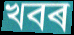
খবৰ